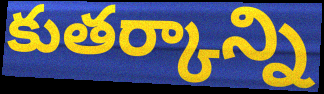
కుతర్కాన్ని